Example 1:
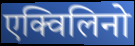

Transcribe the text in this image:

एक्विलिनो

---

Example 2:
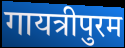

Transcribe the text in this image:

गायत्रीपुरम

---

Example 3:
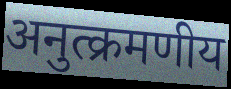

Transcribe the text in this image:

अनुत्क्रमणीय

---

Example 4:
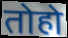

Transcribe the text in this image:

तोहो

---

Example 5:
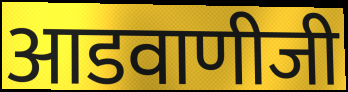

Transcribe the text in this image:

आडवाणीजी